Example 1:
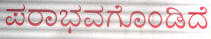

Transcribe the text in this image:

ಪರಾಭವಗೊಂಡಿದೆ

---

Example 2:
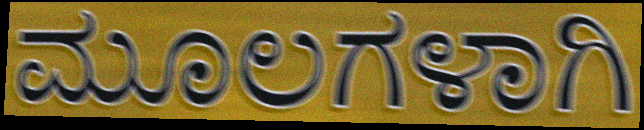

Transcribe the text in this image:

ಮೂಲಗಳಾಗಿ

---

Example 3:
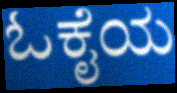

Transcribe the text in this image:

ಓಕೈಯ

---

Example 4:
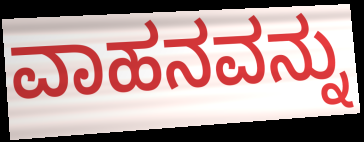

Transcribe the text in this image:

ವಾಹನವನ್ನು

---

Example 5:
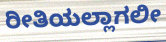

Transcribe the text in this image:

ರೀತಿಯಲ್ಲಾಗಲೀ